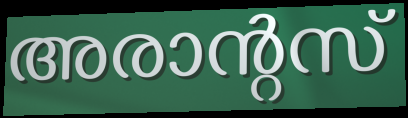
അരാന്റസ്